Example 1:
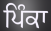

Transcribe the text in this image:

ਪਿੰਕਾ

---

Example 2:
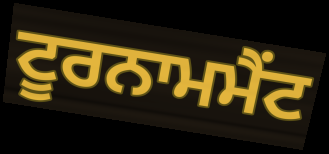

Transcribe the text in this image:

ਟੂਰਨਾਮਮੈਂਟ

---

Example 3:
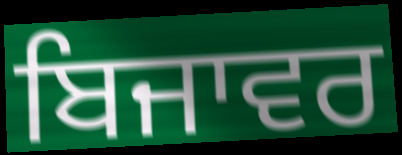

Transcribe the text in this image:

ਬਿਜਾਵਰ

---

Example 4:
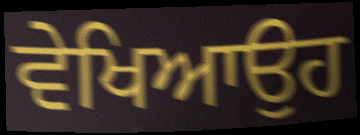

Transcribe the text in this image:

ਵੇਖਿਆਉਹ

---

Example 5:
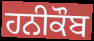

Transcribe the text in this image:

ਹਨੀਕੌਬ